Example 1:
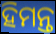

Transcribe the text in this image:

ହିମନ୍ତ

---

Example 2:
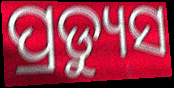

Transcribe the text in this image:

ପ୍ରଡ୍ୟୁସ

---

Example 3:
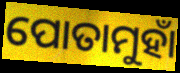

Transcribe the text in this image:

ପୋତାମୁହାଁ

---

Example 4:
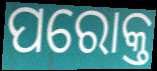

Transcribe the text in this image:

ପରୋକ୍ତ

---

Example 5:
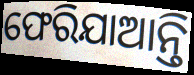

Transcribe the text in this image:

ଫେରିଯାଆନ୍ତି